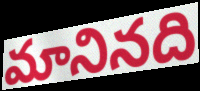
మానినది